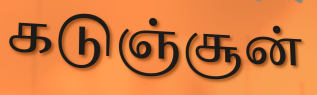
கடுஞ்சூன்